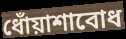
ধোঁয়াশাবোধ